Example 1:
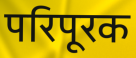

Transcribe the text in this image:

परिपूरक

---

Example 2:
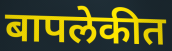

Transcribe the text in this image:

बापलेकीत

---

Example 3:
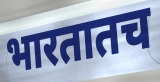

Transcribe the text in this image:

भारतातच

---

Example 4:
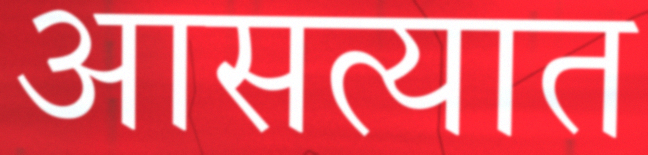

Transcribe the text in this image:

आसत्यात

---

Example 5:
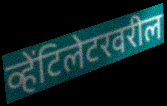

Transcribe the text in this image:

व्हेंटिलेटरवरील